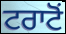
ਟਰਾਟੋਂ